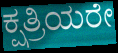
ಕ್ಷತ್ರಿಯರೇ